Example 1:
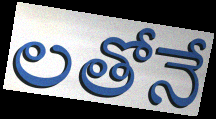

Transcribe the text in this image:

లతోనే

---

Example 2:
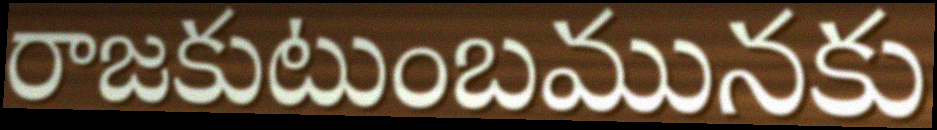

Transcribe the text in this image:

రాజకుటుంబమునకు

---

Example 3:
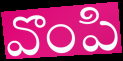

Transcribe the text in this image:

వొంపి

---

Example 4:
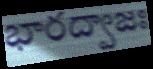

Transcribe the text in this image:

భారద్వాజః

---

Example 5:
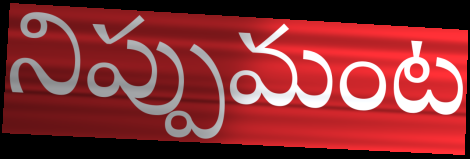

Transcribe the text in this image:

నిప్పుమంట